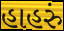
હાહરું